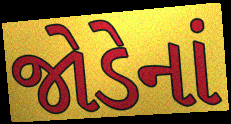
જોડેનાં